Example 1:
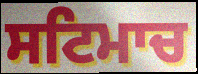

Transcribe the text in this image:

ਸਟਿਮਾਚ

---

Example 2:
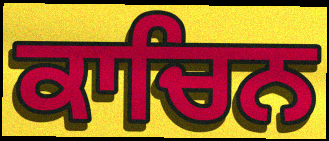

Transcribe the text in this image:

ਕਾਚਿਨ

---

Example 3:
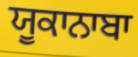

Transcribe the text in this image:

ਯੂਕਾਨਾਬਾ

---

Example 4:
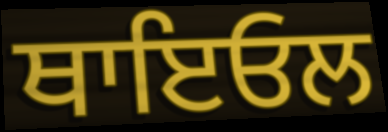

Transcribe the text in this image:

ਥਾਇਓਲ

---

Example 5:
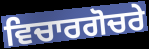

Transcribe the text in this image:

ਵਿਚਾਰਗੋਚਰੇ